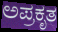
ಅಪ್ರಕೃತ